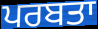
ਪਰਬਤਾ